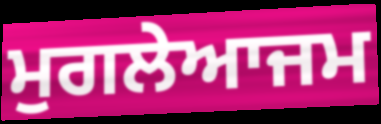
ਮੁਗਲੇਆਜਮ